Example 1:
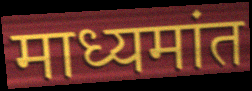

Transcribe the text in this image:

माध्यमांत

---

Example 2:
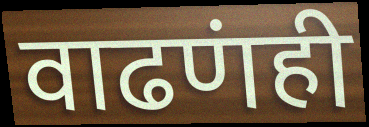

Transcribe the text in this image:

वाढणंही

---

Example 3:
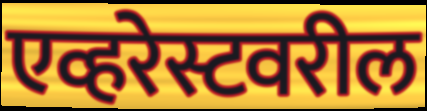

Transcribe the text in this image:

एव्हरेस्टवरील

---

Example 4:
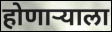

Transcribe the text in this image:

होणाऱ्याला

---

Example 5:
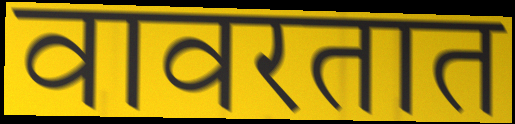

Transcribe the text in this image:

वावरतात